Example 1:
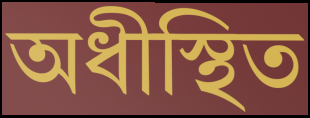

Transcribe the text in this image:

অধীস্থিত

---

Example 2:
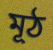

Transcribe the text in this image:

মূঠ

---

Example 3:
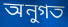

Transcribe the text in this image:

অনুগত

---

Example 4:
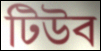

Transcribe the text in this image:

টিউব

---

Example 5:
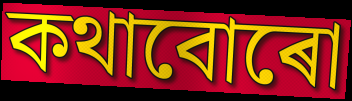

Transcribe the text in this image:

কথাবোৰো